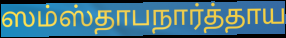
ஸம்ஸ்தாபநார்த்தாய